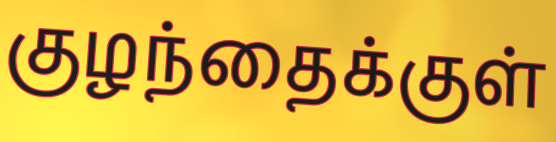
குழந்தைக்குள்